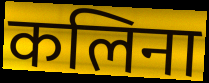
कलिना